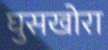
घुसखोरा